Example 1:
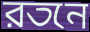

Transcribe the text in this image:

রতনে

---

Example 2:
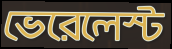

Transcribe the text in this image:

ভেরেলেস্ট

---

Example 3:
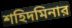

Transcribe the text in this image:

শহিদমিনার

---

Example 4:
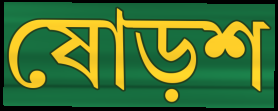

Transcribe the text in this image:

ষোড়শ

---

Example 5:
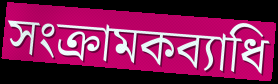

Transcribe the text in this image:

সংক্রামকব্যাধি